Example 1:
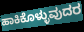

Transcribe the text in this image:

ಹಾಕಿಕೊಳ್ಳುವುದರ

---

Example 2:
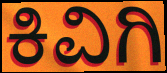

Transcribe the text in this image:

ಕಿವಿಗಿ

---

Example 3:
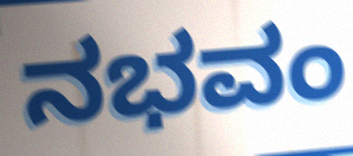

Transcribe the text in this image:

ನಭವಂ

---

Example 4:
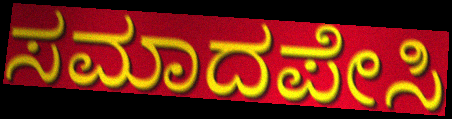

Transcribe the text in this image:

ಸಮಾದಪೇಸಿ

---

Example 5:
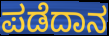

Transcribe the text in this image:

ಪಡೆದಾನ